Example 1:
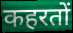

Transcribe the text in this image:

कहरतों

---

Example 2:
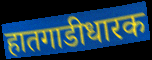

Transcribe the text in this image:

हातगाडीधारक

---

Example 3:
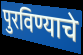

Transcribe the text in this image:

पुरविण्याचे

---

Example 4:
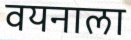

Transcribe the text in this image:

वयनाला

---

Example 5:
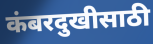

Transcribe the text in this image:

कंबरदुखीसाठी